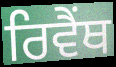
ਰਿਵੈਂਥ